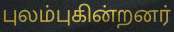
புலம்புகின்றனர்